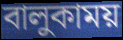
বালুকাময়